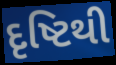
દૃષ્ટિથી